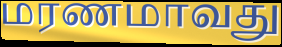
மரணமாவது